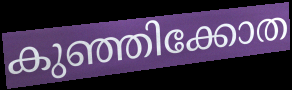
കുഞ്ഞിക്കോത